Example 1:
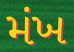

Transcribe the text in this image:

મંખ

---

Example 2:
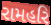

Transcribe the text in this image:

રામહરિ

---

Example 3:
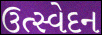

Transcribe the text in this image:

ઉત્સ્વેદન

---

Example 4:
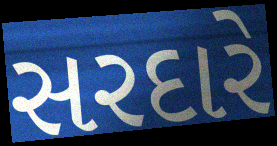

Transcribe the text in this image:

સરદારે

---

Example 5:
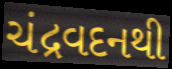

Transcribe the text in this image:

ચંદ્રવદનથી